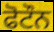
ਫੋਟੌਨ